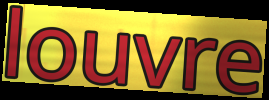
louvre